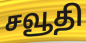
சவூதி